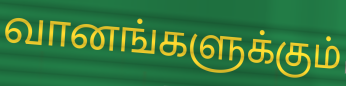
வானங்களுக்கும்